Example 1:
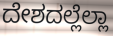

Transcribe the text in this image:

ದೇಶದಲ್ಲೆಲ್ಲಾ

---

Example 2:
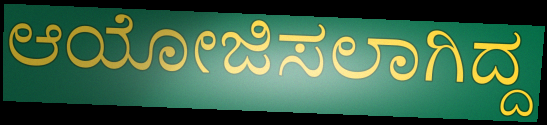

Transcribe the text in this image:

ಆಯೋಜಿಸಲಾಗಿದ್ದ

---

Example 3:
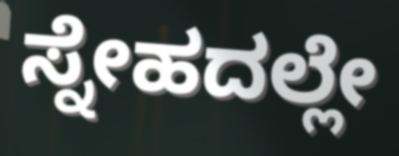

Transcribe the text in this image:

ಸ್ನೇಹದಲ್ಲೇ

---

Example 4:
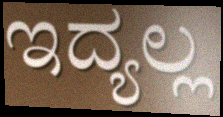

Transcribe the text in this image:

ಇದ್ಯಲ್ಲ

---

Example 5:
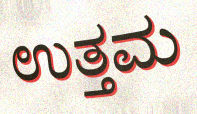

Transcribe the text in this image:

ಉತ್ತಮ